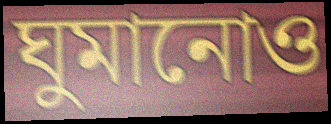
ঘুমানোও